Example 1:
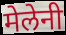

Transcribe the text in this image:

मेलेनी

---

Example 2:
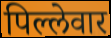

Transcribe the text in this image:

पिल्लेवार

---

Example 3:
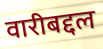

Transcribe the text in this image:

वारीबद्दल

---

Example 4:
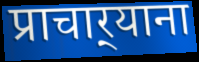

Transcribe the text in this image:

प्राचार्याना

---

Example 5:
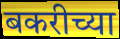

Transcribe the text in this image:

बकरीच्या